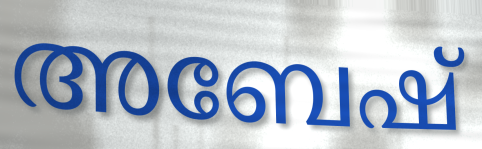
അബേഷ്